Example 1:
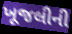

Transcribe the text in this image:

ખૂજલીની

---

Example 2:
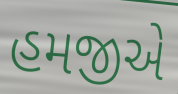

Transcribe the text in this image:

હમજીએ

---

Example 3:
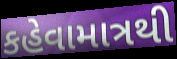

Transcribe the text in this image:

કહેવામાત્રથી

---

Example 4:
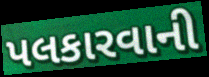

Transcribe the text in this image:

પલકારવાની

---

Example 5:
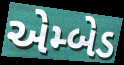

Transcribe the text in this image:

એમ્બેડ